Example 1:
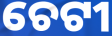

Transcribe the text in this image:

ଚେଟୀ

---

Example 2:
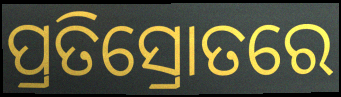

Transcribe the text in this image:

ପ୍ରତିସ୍ରୋତରେ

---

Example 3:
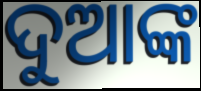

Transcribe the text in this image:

ଦୁଆଙ୍କ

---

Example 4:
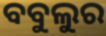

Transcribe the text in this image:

ବବୁଲୁର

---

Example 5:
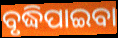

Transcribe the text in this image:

ବୃଦ୍ଧିପାଇବା